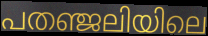
പതഞ്ജലിയിലെ